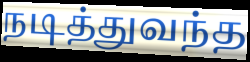
நடித்துவந்த